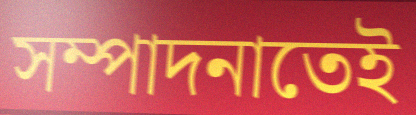
সম্পাদনাতেই